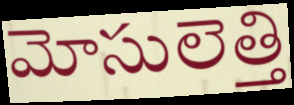
మోసులెత్తి